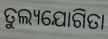
ତୁଲ୍ୟଯୋଗିତା